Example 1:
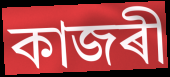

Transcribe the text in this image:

কাজৰী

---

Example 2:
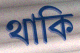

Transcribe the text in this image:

থাকি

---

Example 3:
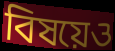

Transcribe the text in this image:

বিষয়েও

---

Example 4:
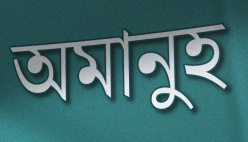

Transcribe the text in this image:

অমানুহ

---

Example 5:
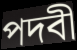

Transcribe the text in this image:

পদবী